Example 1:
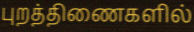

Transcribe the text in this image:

புறத்திணைகளில்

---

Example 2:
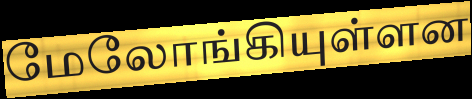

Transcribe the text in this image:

மேலோங்கியுள்ளன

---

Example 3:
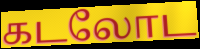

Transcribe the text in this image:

கடலோட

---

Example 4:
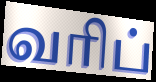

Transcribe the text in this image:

வரிப்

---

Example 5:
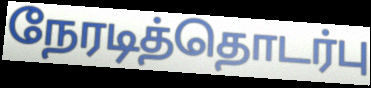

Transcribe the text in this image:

நேரடித்தொடர்பு